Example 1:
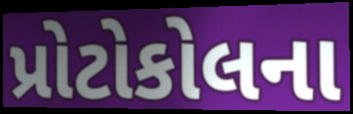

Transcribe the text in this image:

પ્રોટોકોલના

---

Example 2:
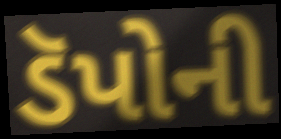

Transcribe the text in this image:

ડૅપોની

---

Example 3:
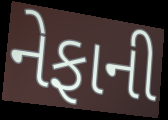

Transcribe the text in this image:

નેફાની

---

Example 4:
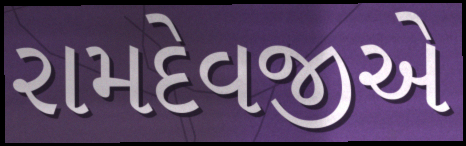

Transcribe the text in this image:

રામદેવજીએ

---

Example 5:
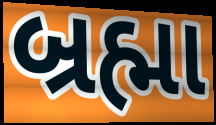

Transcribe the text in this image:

બ્રહ્મા